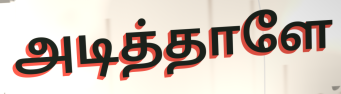
அடித்தாளே